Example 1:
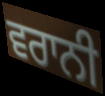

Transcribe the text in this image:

ਵਰਾਨੀ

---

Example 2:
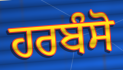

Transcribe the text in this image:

ਹਰਬੰਸੋ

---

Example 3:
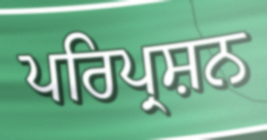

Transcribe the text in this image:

ਪਰਿਪ੍ਰਸ਼ਨ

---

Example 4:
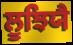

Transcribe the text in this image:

ਲੂਝਿਯੈ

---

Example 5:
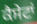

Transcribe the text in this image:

ਕੈਸੇਟਾਂ